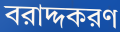
বরাদ্দকরণ